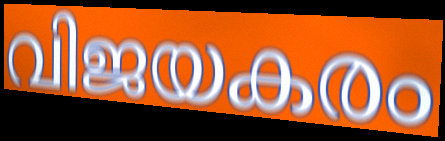
വിജയകരം